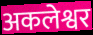
अकलेश्वर